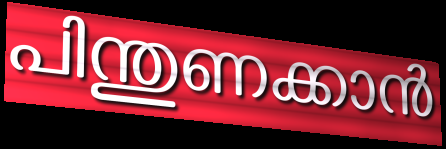
പിന്തുണക്കാൻ